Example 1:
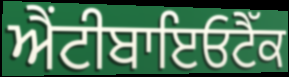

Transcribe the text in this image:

ਐਂਟੀਬਾਇਓਟੈੱਕ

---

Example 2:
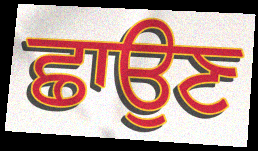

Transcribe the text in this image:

ਛਾਉਣ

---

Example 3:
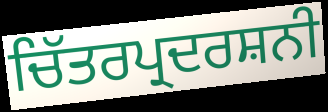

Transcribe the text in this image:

ਚਿੱਤਰਪ੍ਰਦਰਸ਼ਨੀ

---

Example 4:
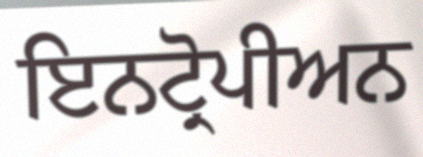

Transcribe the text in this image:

ਇਨਟ੍ਰੋਪੀਅਨ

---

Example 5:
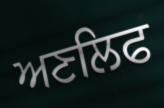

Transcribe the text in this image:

ਅਣਲਿਫ